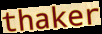
thaker